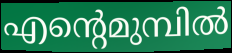
എന്റെമുമ്പിൽ